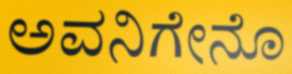
ಅವನಿಗೇನೊ